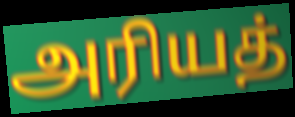
அரியத்